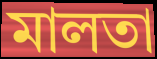
মালতা